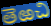
తెఱచి